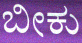
ಬೀಕು